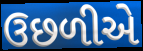
ઉછળીએ